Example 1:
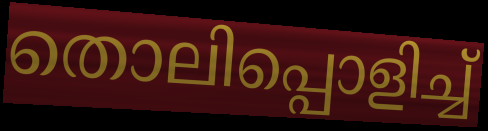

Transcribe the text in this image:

തൊലിപ്പൊളിച്ച്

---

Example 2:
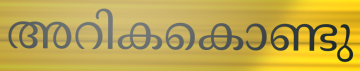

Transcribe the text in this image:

അറികകൊണ്ടു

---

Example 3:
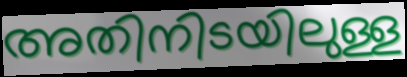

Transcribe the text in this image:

അതിനിടയിലുള്ള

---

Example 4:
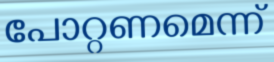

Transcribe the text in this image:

പോറ്റണമെന്ന്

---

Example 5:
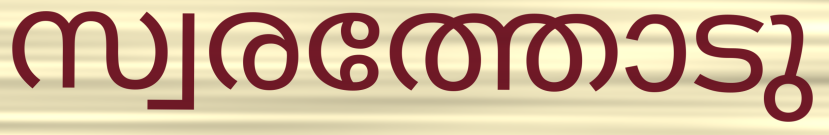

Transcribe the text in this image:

സ്വരത്തോടു